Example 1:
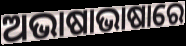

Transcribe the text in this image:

ଅଭାଷାଭାଷାରେ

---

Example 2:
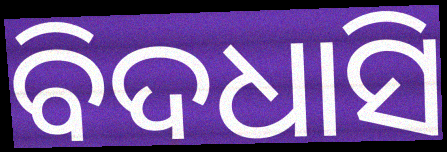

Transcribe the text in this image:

ବିଦଧାସି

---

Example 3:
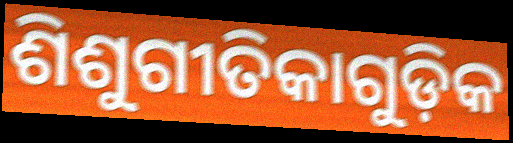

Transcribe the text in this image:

ଶିଶୁଗୀତିକାଗୁଡ଼ିକ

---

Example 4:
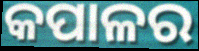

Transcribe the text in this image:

କପାଳର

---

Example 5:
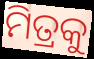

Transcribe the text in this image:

ମିତ୍ରକୁ